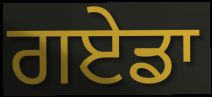
ਗਏਡਾ